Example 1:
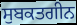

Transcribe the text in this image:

ਸੁਬਕਤਗੀਨ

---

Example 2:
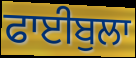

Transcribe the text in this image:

ਫਾਈਬੁਲਾ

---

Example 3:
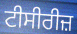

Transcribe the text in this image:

ਟੀਸੀਰੀਜ਼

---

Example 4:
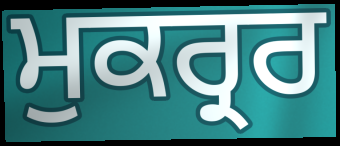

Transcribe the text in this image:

ਮੁਕਰ੍ਰਰ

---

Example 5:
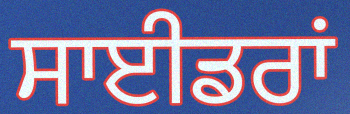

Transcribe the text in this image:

ਸਾਈਡਰਾਂ